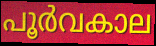
പൂർവകാല